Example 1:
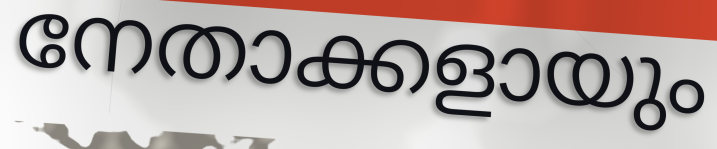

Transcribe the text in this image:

നേതാക്കളായും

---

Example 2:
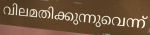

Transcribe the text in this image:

വിലമതിക്കുന്നുവെന്ന്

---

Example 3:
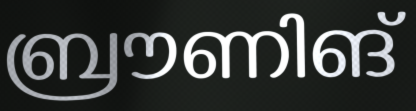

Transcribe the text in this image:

ബ്രൗണിങ്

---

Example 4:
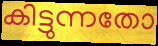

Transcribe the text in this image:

കിട്ടുന്നതോ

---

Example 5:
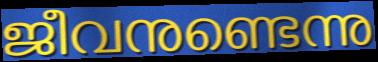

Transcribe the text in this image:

ജീവനുണ്ടെന്നു